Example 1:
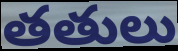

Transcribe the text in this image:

తతులు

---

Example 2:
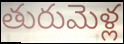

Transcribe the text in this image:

తురుమెళ్ల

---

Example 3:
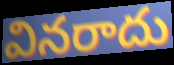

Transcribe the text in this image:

వినరాదు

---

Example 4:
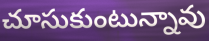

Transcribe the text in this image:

చూసుకుంటున్నావు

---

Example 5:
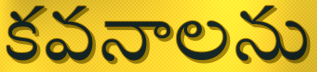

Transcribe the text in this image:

కవనాలను